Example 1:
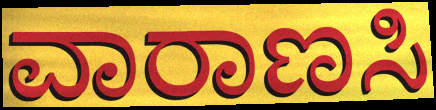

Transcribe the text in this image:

ವಾರಾಣಸಿ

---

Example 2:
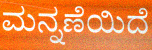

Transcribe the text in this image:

ಮನ್ನಣೆಯಿದೆ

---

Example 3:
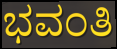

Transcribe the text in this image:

ಭವಂತಿ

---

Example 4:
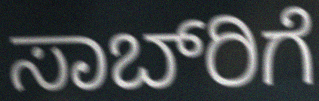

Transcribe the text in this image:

ಸಾಬ್‌ರಿಗೆ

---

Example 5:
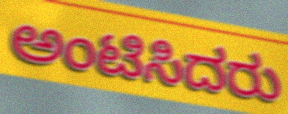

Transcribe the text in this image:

ಅಂಟಿಸಿದರು